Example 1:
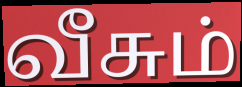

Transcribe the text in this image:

வீசும்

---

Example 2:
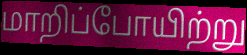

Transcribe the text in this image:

மாறிப்போயிற்று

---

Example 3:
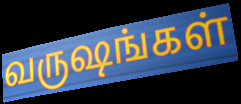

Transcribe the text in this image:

வருஷங்கள்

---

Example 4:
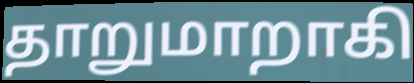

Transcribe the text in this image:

தாறுமாறாகி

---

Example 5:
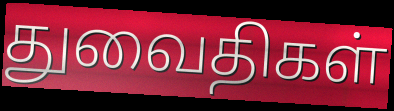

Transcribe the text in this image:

துவைதிகள்